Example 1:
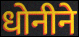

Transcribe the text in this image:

धोनीने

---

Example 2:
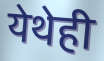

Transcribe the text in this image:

येथेही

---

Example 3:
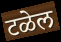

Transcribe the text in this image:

टळेल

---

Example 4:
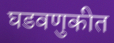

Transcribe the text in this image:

घडवणुकीत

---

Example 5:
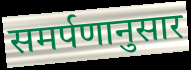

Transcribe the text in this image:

समर्पणानुसार